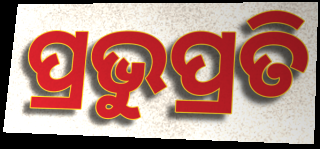
ପ୍ରଭୁପ୍ରତି